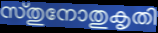
സ്തുനോതുകൃതി